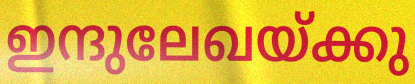
ഇന്ദുലേഖയ്ക്കു